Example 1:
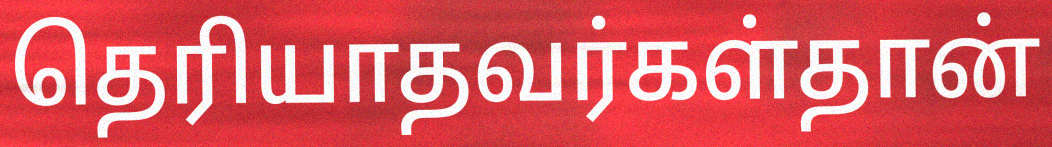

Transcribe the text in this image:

தெரியாதவர்கள்தான்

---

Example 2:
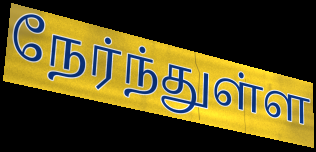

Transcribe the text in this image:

நேர்ந்துள்ள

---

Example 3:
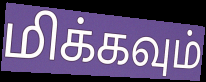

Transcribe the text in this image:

மிக்கவும்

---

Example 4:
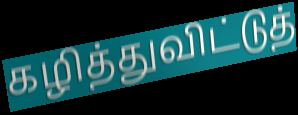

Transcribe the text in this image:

கழித்துவிட்டுத்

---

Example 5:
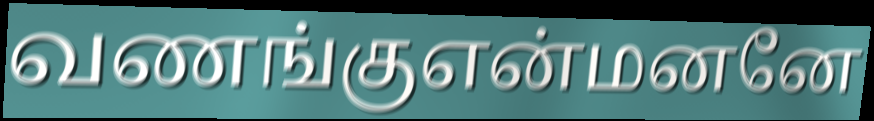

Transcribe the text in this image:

வணங்குஎன்மனனே